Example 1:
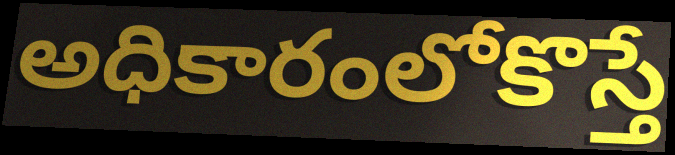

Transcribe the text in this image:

అధికారంలోకొస్తే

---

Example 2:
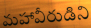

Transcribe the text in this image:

మహావీరుడిని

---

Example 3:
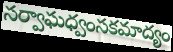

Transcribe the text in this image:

సర్వాఘధ్వంసకమాద్యం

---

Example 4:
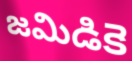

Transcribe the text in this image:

జమిడికె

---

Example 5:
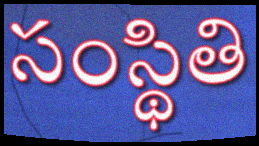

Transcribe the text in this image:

సంస్థితి